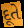
દૂતે